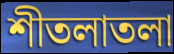
শীতলাতলা